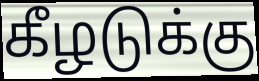
கீழடுக்கு